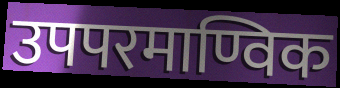
उपपरमाण्विक